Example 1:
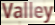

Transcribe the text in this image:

Valley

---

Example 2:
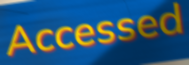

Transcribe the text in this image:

Accessed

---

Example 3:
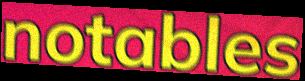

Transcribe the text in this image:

notables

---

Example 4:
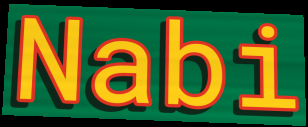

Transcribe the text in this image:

Nabi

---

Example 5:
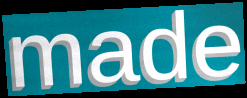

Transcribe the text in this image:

made